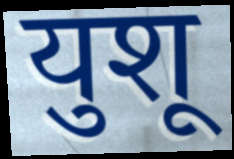
युशू